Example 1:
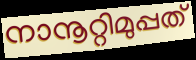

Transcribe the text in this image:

നാനൂറ്റിമുപ്പത്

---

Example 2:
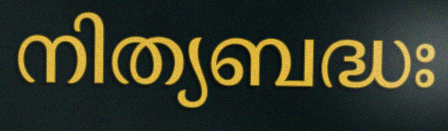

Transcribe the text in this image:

നിത്യബദ്ധഃ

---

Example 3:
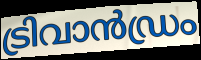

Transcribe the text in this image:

ട്രിവാൻഡ്രം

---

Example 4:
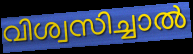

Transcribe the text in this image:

വിശ്വസിച്ചാൽ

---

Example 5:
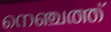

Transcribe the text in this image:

നെഞ്ചത്ത്